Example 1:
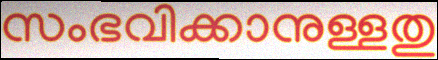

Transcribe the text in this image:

സംഭവിക്കാനുള്ളതു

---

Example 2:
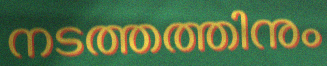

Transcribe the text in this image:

നടത്തത്തിനും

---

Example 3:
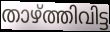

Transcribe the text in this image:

താഴ്ത്തിവിട്ട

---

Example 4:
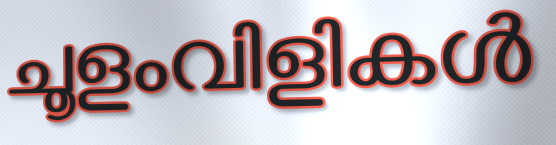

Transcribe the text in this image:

ചൂളംവിളികൾ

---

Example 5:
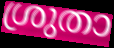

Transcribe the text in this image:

ശ്രുതാ